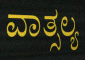
ವಾತ್ಸಲ್ಯ